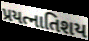
પ્રયત્નાતિશય